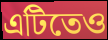
এটিতেও